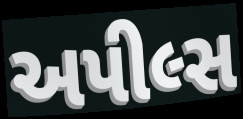
અપીલ્સ